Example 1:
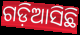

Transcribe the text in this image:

ଗଡ଼ିଆସିଛି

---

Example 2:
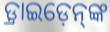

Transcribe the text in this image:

ଡ଼୍ରାଇଡ଼େନ୍‌ଙ୍କ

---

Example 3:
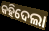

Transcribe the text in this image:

କହିଦେଲା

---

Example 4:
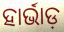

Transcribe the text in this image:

ହାର୍ଭାଡ଼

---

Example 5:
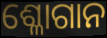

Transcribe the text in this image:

ଶ୍ଳୋଗାନ